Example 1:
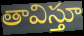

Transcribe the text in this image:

తావిస్తూ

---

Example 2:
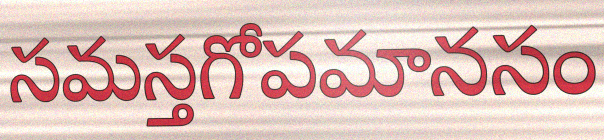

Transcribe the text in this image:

సమస్తగోపమానసం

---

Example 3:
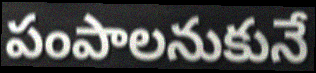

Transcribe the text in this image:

పంపాలనుకునే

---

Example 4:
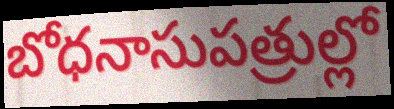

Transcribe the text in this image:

బోధనాసుపత్రుల్లో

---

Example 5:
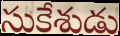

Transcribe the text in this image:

సుకేశుడు